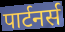
पार्टनर्स